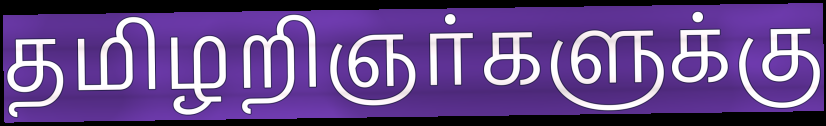
தமிழறிஞர்களுக்கு